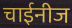
चाईनीज